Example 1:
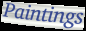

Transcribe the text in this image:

Paintings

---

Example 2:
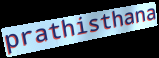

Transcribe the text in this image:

prathisthana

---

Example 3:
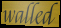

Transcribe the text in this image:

walled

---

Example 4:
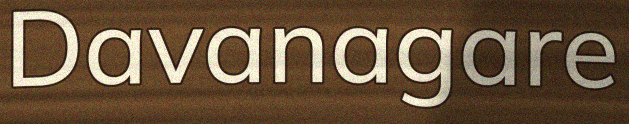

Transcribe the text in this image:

Davanagare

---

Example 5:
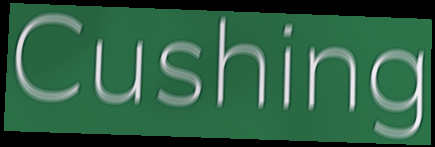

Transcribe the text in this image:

Cushing